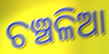
ଚଞ୍ଚଳିଆ